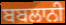
ਬਬਲਾਨੀ